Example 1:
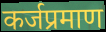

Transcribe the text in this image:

कर्जप्रमाण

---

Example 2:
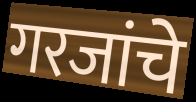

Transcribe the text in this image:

गरजांचे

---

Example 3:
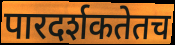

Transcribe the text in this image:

पारदर्शकतेतच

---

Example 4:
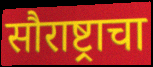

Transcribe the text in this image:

सौराष्ट्राचा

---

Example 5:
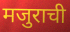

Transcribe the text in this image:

मजुराची